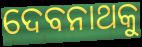
ଦେବନାଥକୁ